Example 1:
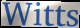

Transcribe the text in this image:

Witts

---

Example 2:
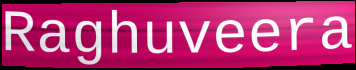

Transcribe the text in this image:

Raghuveera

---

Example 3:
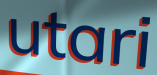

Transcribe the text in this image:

utari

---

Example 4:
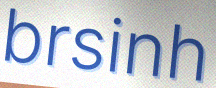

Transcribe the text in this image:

brsinh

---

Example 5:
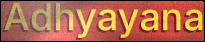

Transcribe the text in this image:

Adhyayana